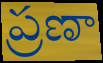
ప్రణా